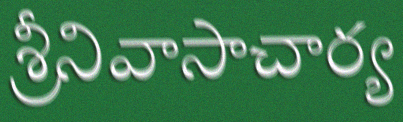
శ్రీనివాసాచార్య